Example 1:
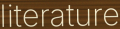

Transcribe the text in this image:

Iiterature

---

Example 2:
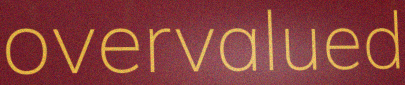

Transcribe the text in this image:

overvalued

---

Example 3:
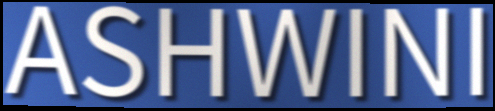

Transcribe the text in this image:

ASHWINI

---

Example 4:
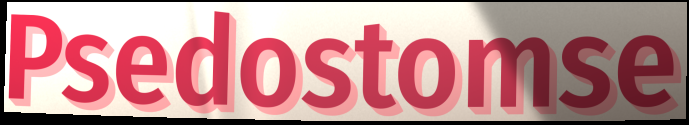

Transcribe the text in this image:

Psedostomse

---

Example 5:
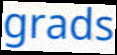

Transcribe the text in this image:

grads